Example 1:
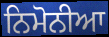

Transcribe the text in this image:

ਨਿਮੋਨੀਆ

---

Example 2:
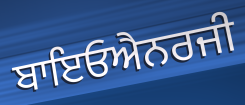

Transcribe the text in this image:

ਬਾਇਓਐਨਰਜੀ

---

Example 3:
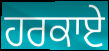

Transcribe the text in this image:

ਹਰਕਾਏ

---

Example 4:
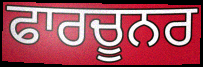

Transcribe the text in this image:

ਫਾਰਚੂਨਰ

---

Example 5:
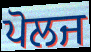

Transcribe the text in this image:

ਪੋਲਜ